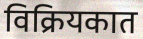
विक्रियकात